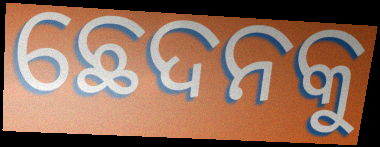
ଛେଦନକୁ